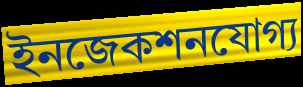
ইনজেকশনযোগ্য